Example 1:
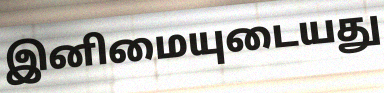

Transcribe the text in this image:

இனிமையுடையது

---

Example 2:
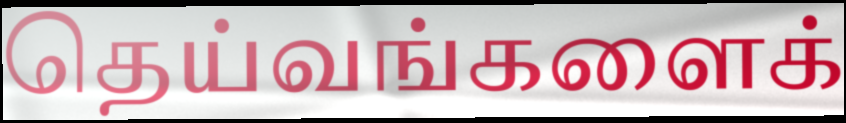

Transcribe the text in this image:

தெய்வங்களைக்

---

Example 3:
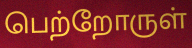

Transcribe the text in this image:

பெற்றோருள்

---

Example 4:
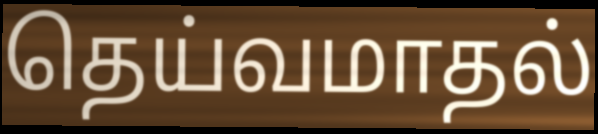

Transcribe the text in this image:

தெய்வமாதல்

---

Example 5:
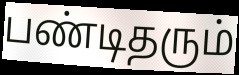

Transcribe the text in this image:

பண்டிதரும்